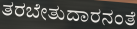
ತರಬೇತುದಾರನಂತೆ